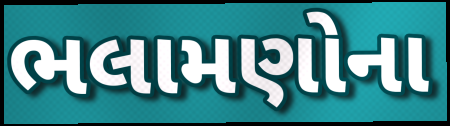
ભલામણોના